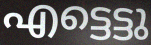
എട്ടെട്ടു